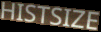
HISTSIZE